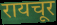
रायचूर